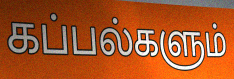
கப்பல்களும்